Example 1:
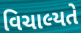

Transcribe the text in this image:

વિચાલ્યતે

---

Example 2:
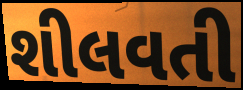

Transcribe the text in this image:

શીલવતી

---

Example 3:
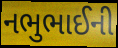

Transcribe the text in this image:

નભુભાઈની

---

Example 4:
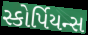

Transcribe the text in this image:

સ્કોર્પિયન્સ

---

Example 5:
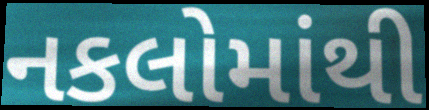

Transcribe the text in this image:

નકલોમાંથી